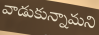
వాడుకున్నామని